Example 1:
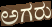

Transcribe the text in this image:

ಅಗರು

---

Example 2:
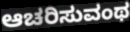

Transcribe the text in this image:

ಆಚರಿಸುವಂಥ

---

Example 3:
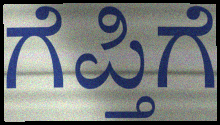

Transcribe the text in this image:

ಗೆಪ್ತಿಗೆ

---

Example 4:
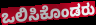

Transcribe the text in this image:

ಒಲಿಸಿಕೊಂಡರು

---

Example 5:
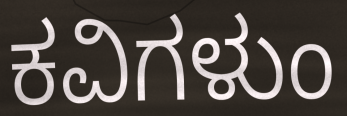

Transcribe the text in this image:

ಕವಿಗಳುಂ